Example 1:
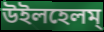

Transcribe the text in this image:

উইলহেলম্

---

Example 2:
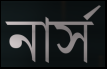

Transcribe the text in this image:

নার্স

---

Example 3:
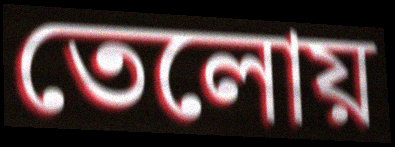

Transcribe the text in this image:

তেলোয়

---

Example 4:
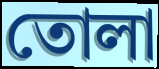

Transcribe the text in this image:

তোলা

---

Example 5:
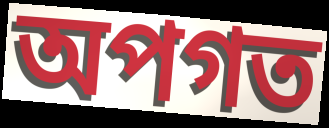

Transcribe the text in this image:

অপগত